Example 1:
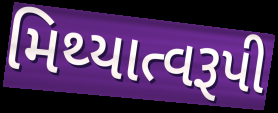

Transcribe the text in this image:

મિથ્યાત્વરૂપી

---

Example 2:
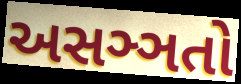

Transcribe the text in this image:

અસઞ્ઞતો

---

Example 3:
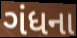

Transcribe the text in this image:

ગંધના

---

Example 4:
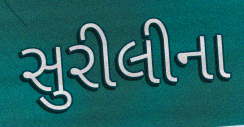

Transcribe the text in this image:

સુરીલીના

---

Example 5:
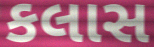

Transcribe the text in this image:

કલાસ